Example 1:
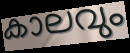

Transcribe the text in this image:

കാലവും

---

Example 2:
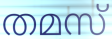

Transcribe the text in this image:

തമസ്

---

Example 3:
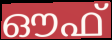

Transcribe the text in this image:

ഔഫ്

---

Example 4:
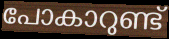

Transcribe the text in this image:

പോകാറുണ്ട്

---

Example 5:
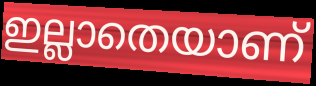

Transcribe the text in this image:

ഇല്ലാതെയാണ്